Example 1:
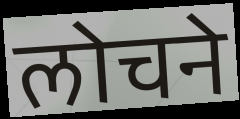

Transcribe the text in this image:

लोचने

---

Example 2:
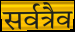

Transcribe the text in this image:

सर्वत्रैव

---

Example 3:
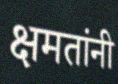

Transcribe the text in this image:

क्षमतांनी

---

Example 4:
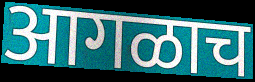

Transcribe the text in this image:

आगळाच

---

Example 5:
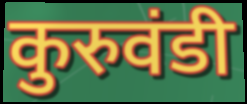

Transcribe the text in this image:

कुरुवंडी